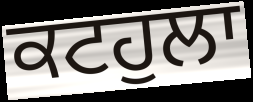
ਕਟਹੁਲਾ